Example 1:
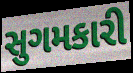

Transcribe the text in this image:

સુગમકારી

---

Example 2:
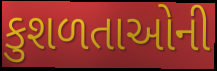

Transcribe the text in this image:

કુશળતાઓની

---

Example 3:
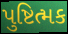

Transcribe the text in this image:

પુષ્ટિત્મક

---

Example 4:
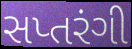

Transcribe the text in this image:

સપ્તરંગી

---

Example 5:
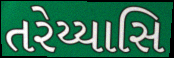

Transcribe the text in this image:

તરેય્યાસિ